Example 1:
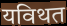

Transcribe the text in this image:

यविथत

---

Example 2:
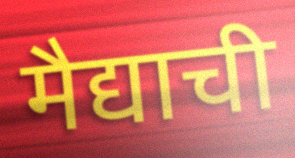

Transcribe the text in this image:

मैद्याची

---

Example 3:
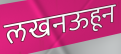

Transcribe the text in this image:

लखनऊहून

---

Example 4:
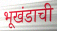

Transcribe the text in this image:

भूखंडाची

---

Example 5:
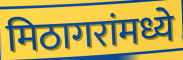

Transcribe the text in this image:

मिठागरांमध्ये